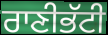
ਰਾਣੀਭੱਟੀ